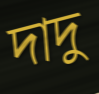
দাদু